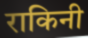
राकिनी